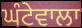
ਘੰਟੇਵਾਲਾ